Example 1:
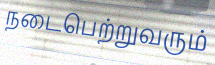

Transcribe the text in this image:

நடைபெற்றுவரும்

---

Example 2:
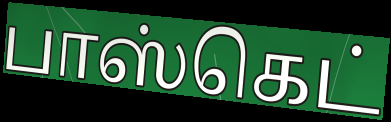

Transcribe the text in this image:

பாஸ்கெட்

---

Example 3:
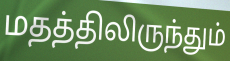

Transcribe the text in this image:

மதத்திலிருந்தும்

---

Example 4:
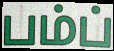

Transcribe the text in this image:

பம்ப்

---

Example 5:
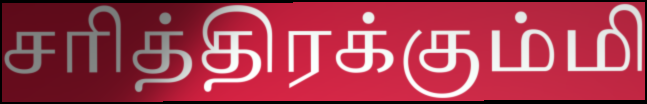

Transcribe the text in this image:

சரித்திரக்கும்மி